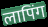
लापिंग